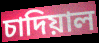
চাদিয়াল